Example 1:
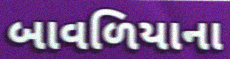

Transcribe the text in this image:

બાવળિયાના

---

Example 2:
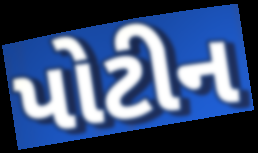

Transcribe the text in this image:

પોટીન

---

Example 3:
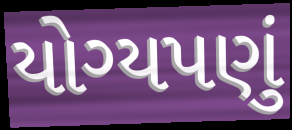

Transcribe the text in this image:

યોગ્યપણું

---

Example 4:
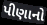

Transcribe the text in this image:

પીણાનો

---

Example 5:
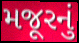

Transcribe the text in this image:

મજૂરનું